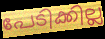
പേടിക്കില്ല